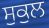
ਸੁਕੁਲ